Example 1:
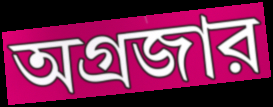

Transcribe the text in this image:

অগ্রজার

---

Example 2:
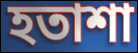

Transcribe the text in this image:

হতাশা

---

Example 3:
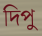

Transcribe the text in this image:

দিপু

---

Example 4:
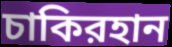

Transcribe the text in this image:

চাকিরহান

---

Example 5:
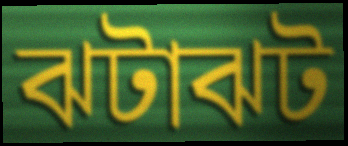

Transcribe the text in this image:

ঝটাঝট